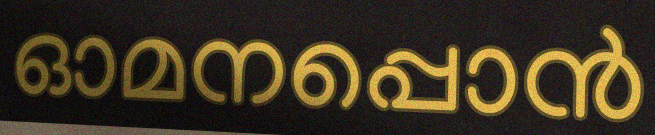
ഓമനപ്പൊൻ